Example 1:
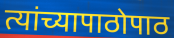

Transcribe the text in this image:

त्यांच्यापाठोपाठ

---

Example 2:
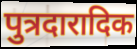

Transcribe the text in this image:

पुत्रदारादिक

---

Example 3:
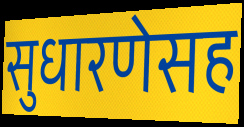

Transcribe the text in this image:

सुधारणेसह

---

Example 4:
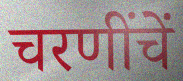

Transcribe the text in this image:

चरणींचें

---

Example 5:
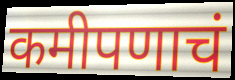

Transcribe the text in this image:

कमीपणाचं